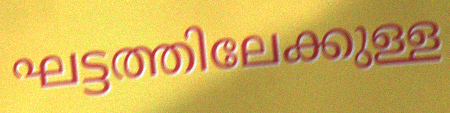
ഘട്ടത്തിലേക്കുള്ള